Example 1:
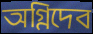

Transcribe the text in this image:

অগ্নিদেব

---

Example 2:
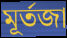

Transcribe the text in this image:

মূর্তজা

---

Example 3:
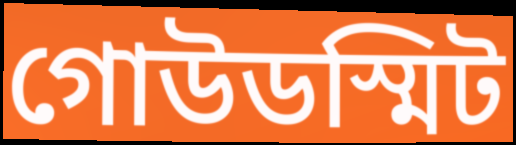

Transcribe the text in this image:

গোউডস্মিট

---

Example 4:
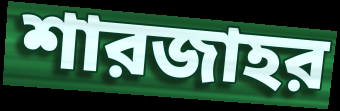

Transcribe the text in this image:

শারজাহর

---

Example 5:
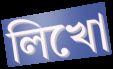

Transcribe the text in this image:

লিখো